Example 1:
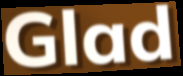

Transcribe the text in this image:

Glad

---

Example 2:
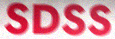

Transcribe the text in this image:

SDSS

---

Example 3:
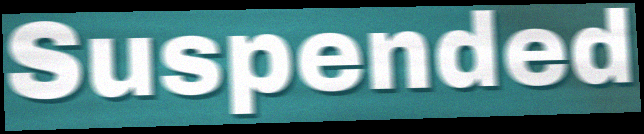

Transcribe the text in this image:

Suspended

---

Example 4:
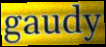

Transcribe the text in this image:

gaudy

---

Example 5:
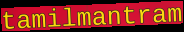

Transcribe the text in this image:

tamilmantram